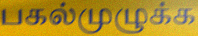
பகல்முழுக்க